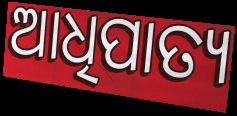
ଆଧିପାତ୍ୟ